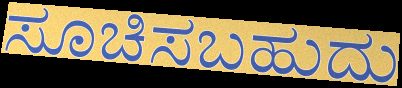
ಸೂಚಿಸಬಹುದು